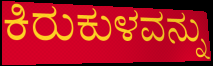
ಕಿರುಕುಳವನ್ನು